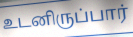
உடனிருப்பார்